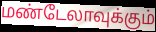
மண்டேலாவுக்கும்